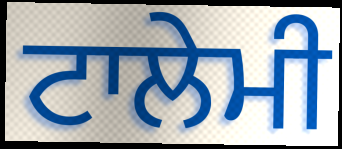
ਟਾਲੇਮੀ